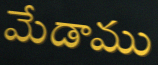
మేడాము